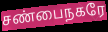
சண்பைநகரே